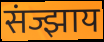
संज्झाय